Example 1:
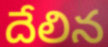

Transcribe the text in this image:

దేలిన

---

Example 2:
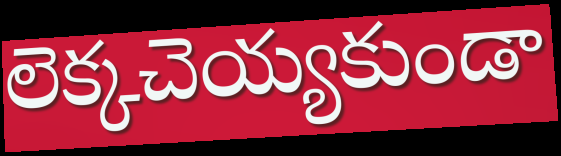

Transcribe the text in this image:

లెక్కచెయ్యకుండా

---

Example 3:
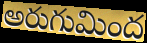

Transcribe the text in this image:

అరుగుమింద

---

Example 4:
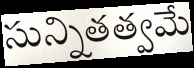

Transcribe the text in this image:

సున్నితత్వమే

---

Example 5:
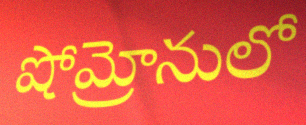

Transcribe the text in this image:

షోమ్రోనులో